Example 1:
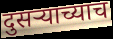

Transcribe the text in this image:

दुसऱ्याच्याच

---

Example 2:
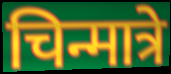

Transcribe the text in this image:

चिन्मात्रे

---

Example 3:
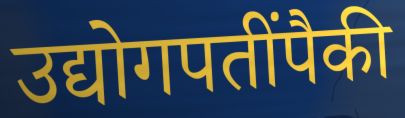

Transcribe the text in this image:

उद्योगपतींपैकी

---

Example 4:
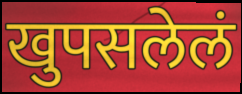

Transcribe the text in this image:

खुपसलेलं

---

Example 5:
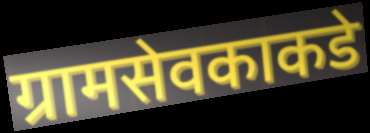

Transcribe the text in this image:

ग्रामसेवकाकडे